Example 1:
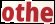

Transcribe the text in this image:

othe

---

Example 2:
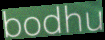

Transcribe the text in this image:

bodhu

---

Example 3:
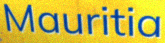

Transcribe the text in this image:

Mauritia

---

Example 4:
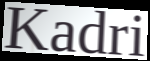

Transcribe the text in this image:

Kadri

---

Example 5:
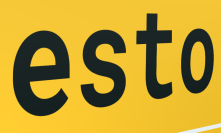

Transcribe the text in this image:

esto